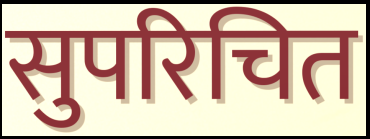
सुपरिचित